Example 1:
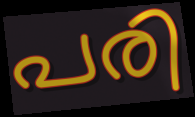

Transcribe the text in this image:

പരി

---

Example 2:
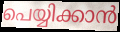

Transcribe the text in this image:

പെയ്യിക്കാൻ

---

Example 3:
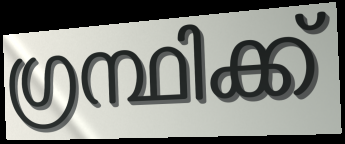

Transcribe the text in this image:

ഗ്രന്ഥിക്ക്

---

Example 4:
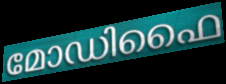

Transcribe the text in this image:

മോഡിഫൈ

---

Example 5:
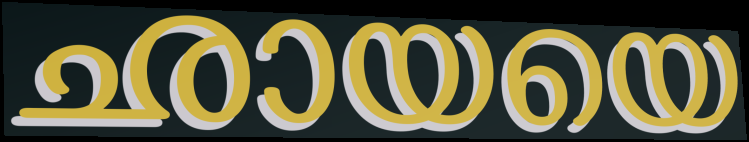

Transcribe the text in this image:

ഛായയെ